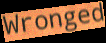
Wronged